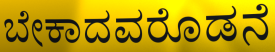
ಬೇಕಾದವರೊಡನೆ